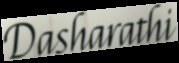
Dasharathi